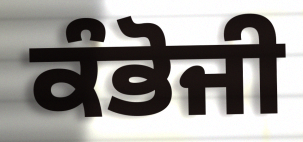
ਕੰਭੋਜੀ